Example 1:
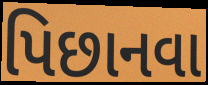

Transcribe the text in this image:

પિછાનવા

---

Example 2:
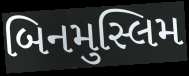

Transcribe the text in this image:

બિનમુસ્લિમ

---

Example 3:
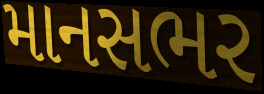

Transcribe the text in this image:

માનસભર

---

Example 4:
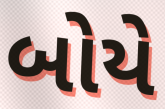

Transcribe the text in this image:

બોયે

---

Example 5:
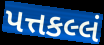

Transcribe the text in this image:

પત્તકલ્લં